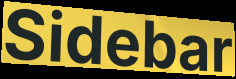
Sidebar